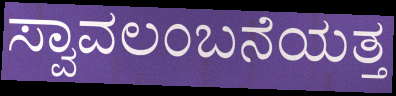
ಸ್ವಾವಲಂಬನೆಯತ್ತ